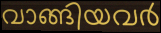
വാങ്ങിയവർ